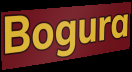
Bogura